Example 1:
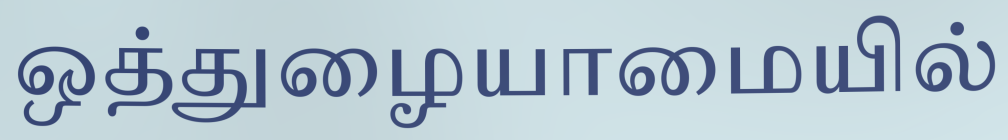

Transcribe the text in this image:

ஒத்துழையாமையில்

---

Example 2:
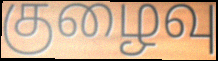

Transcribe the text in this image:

குழைவு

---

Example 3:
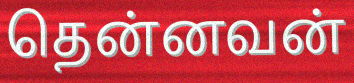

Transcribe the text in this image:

தென்னவன்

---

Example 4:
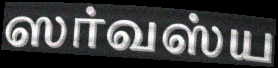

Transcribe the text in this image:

ஸர்வஸ்ய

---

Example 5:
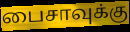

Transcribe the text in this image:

பைசாவுக்கு